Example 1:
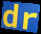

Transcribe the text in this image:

dr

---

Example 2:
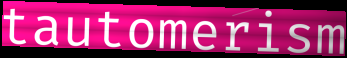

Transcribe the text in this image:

tautomerism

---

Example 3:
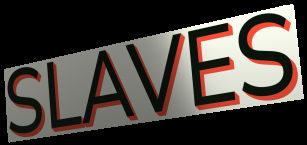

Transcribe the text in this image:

SLAVES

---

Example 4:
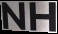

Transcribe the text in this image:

NH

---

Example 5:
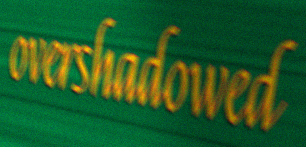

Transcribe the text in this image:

overshadowed